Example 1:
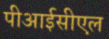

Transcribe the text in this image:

पीआईसीएल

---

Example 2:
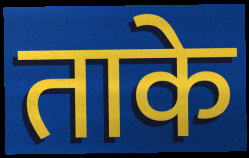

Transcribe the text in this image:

ताके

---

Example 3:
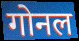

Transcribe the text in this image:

गोनल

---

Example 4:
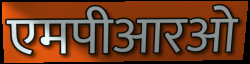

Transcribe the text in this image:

एमपीआरओ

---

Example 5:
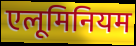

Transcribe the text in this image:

एलूमिनियम